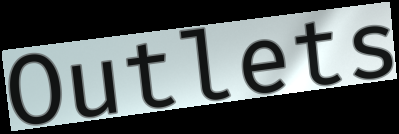
Outlets